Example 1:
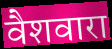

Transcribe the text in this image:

वैशवारा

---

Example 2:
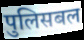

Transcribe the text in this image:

पुलिसबल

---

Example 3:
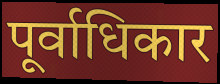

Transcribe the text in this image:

पूर्वाधिकार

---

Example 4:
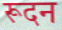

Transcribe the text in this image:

रूदन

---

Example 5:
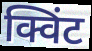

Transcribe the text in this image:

क्विंट